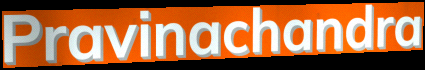
Pravinachandra